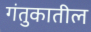
गंतुकातील